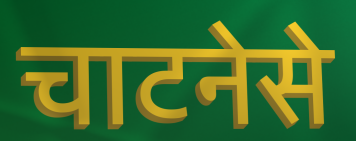
चाटनेसे